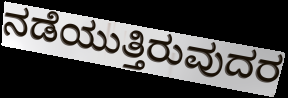
ನಡೆಯುತ್ತಿರುವುದರ